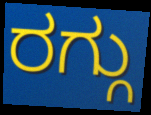
ರಗ್ಗು